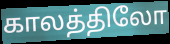
காலத்திலோ